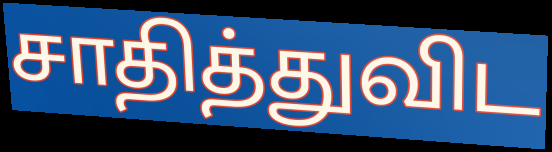
சாதித்துவிட